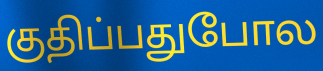
குதிப்பதுபோல